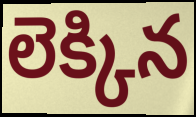
లెక్కిన